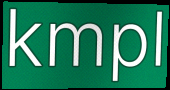
kmpl